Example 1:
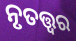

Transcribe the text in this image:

ନୃତତ୍ତ୍ୱର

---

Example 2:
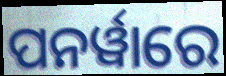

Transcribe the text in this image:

ପନର୍ୱାରେ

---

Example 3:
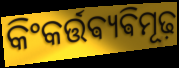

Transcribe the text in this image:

କିଂକର୍ତ୍ତଵ୍ଯଵିମୂଢ଼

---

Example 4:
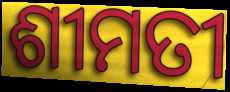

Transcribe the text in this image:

ଶୀମତୀ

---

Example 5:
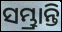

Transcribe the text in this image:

ସମ୍ଭ୍ରାନ୍ତି